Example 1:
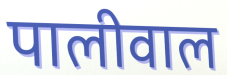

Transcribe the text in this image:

पालीवाल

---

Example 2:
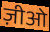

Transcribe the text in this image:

ज़ीओ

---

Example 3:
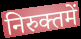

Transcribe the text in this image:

निरुक्तमें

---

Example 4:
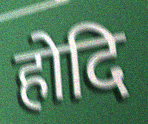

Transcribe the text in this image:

होदि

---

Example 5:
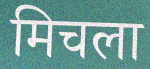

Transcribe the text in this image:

मिचला